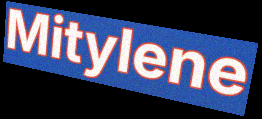
Mitylene